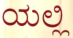
ಯಲ್ಲಿ